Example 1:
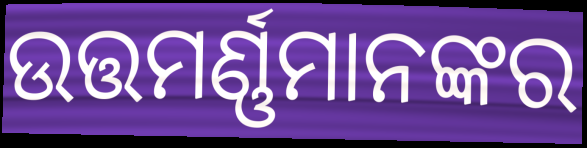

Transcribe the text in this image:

ଉତ୍ତମର୍ଣ୍ଣମାନଙ୍କର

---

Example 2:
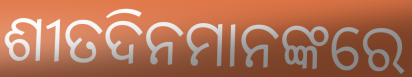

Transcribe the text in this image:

ଶୀତଦିନମାନଙ୍କରେ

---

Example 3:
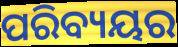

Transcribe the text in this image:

ପରିବ୍ୟୟର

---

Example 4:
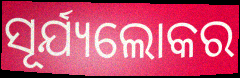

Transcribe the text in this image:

ସୂର୍ଯ୍ୟଲୋକର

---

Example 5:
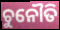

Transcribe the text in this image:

ଚୁନୌତି